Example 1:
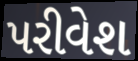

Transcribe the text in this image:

પરીવેશ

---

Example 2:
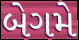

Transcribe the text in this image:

બેગમે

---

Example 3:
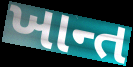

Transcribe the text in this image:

ખાન્ત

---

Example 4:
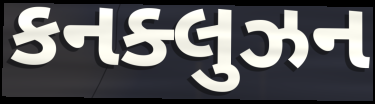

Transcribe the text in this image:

કનક્લુઝન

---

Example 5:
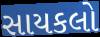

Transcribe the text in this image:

સાયકલો